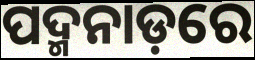
ପଦ୍ମନାଡ଼ରେ